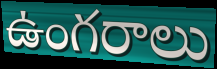
ఉంగరాలు